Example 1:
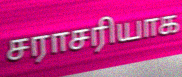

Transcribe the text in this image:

சராசரியாக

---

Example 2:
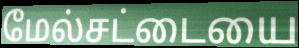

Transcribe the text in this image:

மேல்சட்டையை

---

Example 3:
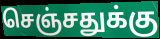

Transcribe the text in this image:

செஞ்சதுக்கு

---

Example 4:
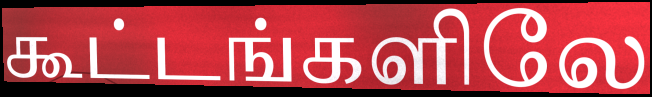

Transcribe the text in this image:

கூட்டங்களிலே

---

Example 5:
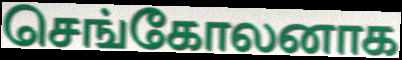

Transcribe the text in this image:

செங்கோலனாக